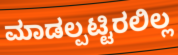
ಮಾಡಲ್ಪಟ್ಟಿರಲಿಲ್ಲ